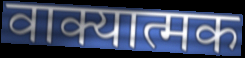
वाक्यात्मक